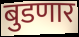
बुडणार